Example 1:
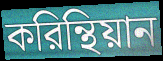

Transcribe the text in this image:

করিন্থিয়ান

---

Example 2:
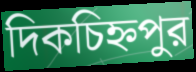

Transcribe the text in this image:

দিকচিহ্নপুর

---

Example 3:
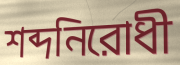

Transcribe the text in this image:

শব্দনিরোধী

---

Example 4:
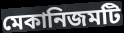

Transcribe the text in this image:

মেকানিজমটি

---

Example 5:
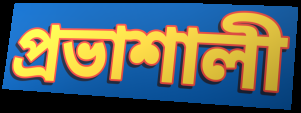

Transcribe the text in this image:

প্রভাশালী